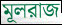
মূলরাজ